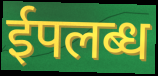
ईपलब्ध